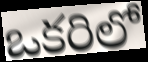
ఒకరిలో